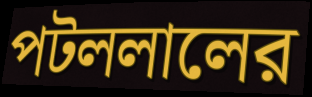
পটললালের